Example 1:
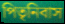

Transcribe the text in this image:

পিতৃনিবাস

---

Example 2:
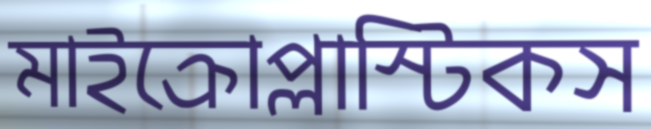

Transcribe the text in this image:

মাইক্রোপ্লাস্টিকস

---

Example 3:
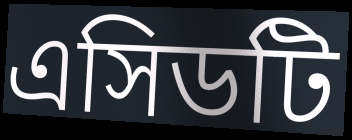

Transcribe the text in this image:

এসিডটি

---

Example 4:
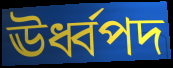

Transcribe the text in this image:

ঊর্ধ্বপদ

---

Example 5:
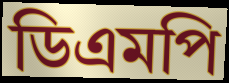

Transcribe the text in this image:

ডিএমপি